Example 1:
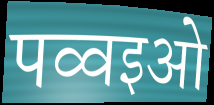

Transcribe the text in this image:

पव्वइओ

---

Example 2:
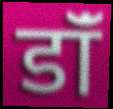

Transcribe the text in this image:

डॉं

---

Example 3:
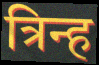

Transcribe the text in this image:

त्रिन्ह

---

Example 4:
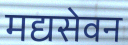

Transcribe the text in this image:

मद्यसेवन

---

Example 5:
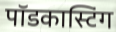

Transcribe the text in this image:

पॉडकास्टिंग